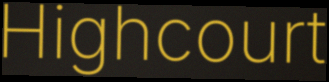
Highcourt